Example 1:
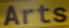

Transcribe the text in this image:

Arts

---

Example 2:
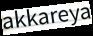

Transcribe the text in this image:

akkareya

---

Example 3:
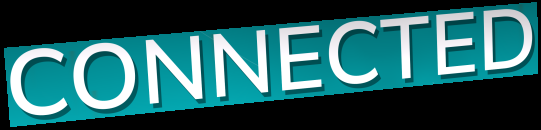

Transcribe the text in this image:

CONNECTED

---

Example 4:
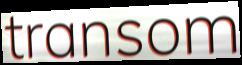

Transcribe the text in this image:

transom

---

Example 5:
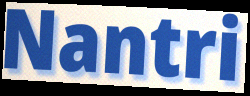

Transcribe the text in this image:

Nantri